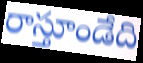
రాస్తూండేది